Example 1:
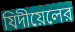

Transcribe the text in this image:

যিদীয়েলের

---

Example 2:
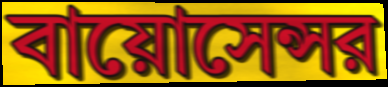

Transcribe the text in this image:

বায়োসেন্সর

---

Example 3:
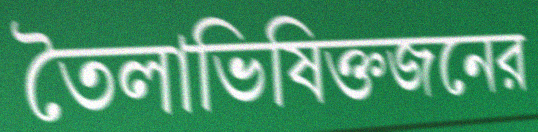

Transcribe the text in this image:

তৈলাভিষিক্তজনের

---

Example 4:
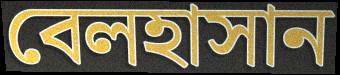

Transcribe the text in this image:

বেলহাসান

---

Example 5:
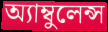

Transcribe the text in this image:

অ্যাম্বুলেন্স